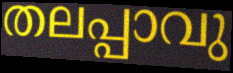
തലപ്പാവു